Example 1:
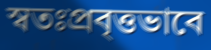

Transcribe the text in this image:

স্বতঃপ্রবৃত্তভাবে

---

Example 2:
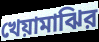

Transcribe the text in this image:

খেয়ামাঝির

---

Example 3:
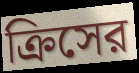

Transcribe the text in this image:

ক্রিসের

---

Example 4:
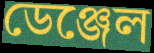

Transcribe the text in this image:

ডেঞ্জেল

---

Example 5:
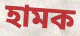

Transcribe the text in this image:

হামক